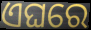
ଏଘରେ